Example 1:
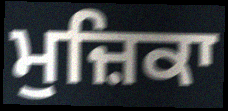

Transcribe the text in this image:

ਮੁਜ਼ਿਕਾ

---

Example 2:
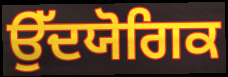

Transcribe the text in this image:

ਉੱਦਯੋਗਿਕ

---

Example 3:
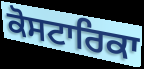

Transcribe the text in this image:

ਕੋਸਟਾਰਿਕਾ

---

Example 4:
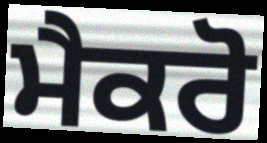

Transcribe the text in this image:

ਮੈਕਰੋ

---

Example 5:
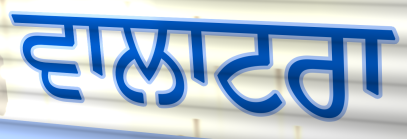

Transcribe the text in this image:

ਵਾਲਾਟਰਾ